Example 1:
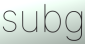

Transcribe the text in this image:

subg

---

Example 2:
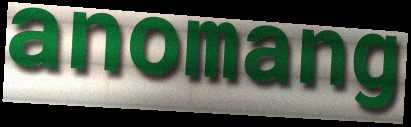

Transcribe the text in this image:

anomang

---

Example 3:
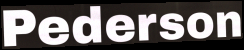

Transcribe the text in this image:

Pederson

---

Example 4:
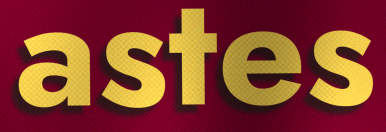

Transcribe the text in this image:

astes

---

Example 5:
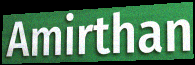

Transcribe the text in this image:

Amirthan